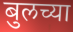
बुलच्या